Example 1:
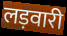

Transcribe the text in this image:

लड़वारी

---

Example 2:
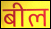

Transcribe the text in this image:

बील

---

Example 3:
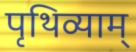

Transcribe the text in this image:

पृथिव्याम्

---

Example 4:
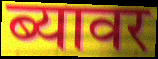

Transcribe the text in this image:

ब्यावर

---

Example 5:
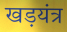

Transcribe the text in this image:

खड़यंत्र